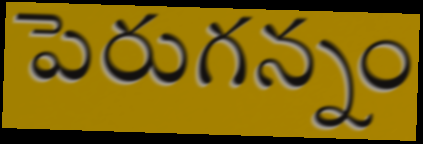
పెరుగన్నం